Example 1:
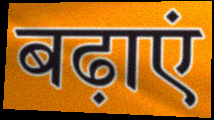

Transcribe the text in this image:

बढ़ाएं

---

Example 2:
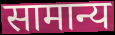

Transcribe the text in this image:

सामान्य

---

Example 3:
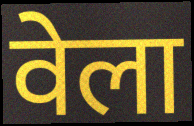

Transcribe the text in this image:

वेला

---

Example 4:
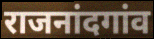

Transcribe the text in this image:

राजनांदगांव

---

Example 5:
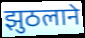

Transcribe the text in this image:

झुठलाने